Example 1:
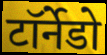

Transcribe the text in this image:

टॉर्नेडो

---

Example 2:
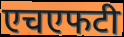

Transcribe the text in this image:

एचएफटी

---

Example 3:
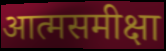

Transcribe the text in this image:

आत्मसमीक्षा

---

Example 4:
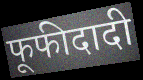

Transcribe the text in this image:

फूफीदादी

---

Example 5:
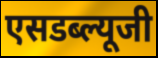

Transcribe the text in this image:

एसडब्ल्यूजी